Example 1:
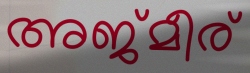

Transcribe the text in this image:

അജ്മീര്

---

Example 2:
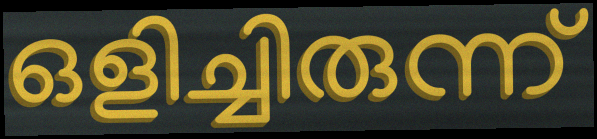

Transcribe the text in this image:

ഒളിച്ചിരുന്ന്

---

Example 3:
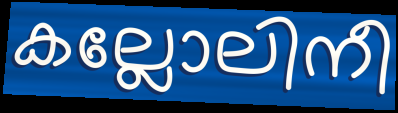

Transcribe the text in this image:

കല്ലോലിനീ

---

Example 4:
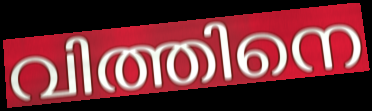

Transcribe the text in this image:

വിത്തിനെ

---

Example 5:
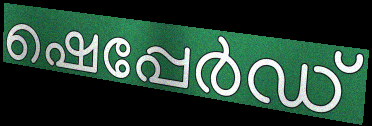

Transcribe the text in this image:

ഷെപ്പേർഡ്